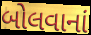
બોલવાનાં